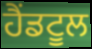
ਹੈਂਡਟੂਲ